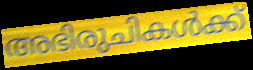
അഭിരുചികൾക്ക്